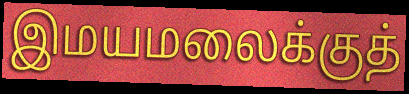
இமயமலைக்குத்